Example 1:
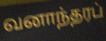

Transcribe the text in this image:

வனாந்தரப்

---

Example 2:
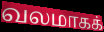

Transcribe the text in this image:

வலமாகக்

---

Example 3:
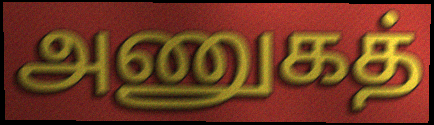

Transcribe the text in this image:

அணுகத்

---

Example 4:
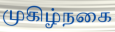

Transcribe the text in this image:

முகிழ்நகை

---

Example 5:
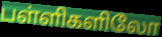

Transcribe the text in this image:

பள்ளிகளிலோ